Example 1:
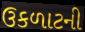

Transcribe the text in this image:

ઉકળાટની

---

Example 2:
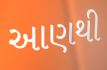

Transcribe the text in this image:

આણથી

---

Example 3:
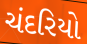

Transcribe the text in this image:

ચંદરિયો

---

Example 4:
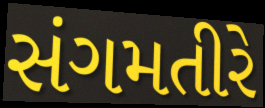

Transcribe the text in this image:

સંગમતીરે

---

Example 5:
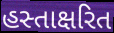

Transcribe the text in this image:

હસ્તાક્ષરિત